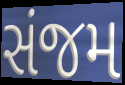
સંજમ